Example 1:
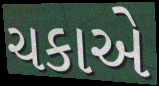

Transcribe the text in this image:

ચકાએ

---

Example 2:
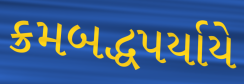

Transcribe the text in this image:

ક્રમબદ્ધપર્યાયે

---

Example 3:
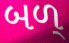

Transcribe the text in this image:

બળ્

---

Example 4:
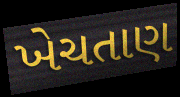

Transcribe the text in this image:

ખેચતાણ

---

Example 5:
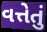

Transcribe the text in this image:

વત્તેતું